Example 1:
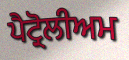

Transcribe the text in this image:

ਪੈਟ੍ਰੋਲੀਅਮ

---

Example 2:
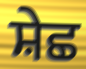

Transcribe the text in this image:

ਸ਼ੇਛ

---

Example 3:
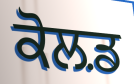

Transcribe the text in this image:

ਕੋਲ਼ਡ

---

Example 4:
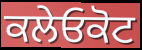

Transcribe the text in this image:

ਕਲੇਓਕੋਟ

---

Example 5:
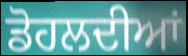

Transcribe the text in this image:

ਡੋਹਲਦੀਆਂ